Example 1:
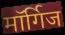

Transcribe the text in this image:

मॉर्गिज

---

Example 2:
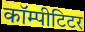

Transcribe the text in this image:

कॉम्पीटिटर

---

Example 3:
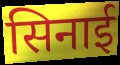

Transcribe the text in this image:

सिनाई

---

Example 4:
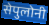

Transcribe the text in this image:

सेपुलोनी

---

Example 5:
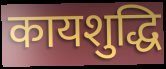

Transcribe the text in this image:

कायशुद्धि